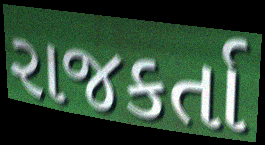
રાજકર્તા